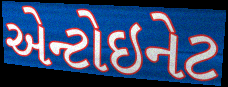
એન્ટોઇનેટ